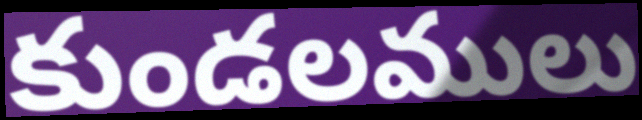
కుండలములు